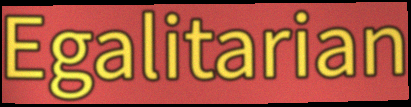
Egalitarian